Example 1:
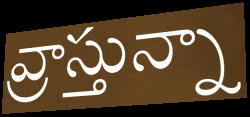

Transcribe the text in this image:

వ్రాస్తున్నా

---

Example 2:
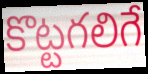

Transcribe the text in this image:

కొట్టగలిగే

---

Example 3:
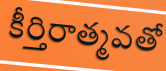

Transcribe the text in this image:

కీర్తిరాత్మవతో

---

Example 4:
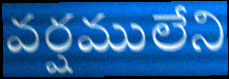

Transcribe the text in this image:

వర్షములేని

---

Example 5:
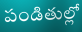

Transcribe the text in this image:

పండితుల్లో